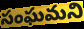
సంఘమని